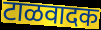
टाळवादक